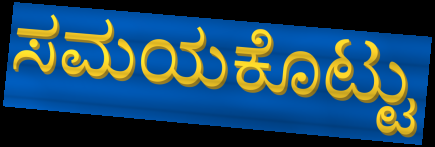
ಸಮಯಕೊಟ್ಟು